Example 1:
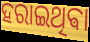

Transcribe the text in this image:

ହରାଇଥିଵା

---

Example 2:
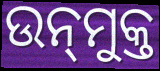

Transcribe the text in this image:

ଉନ୍‍ମୁକ୍ତ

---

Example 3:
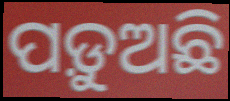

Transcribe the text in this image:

ପଡ଼ୁଅଛି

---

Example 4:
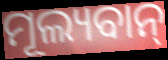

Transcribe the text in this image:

ମୂଲ୍ୟବାନ୍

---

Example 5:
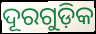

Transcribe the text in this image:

ଦୂରଗୁଡ଼ିକ